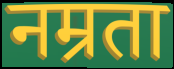
नम्रता